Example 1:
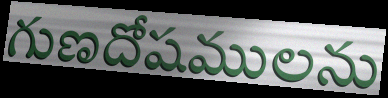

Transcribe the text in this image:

గుణదోషములను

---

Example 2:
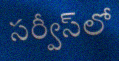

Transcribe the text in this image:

సర్వీస్‌లో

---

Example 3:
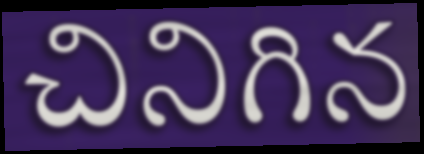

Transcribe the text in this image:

చినిగిన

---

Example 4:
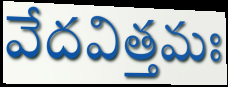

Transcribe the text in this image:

వేదవిత్తమః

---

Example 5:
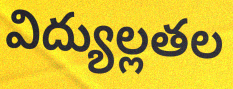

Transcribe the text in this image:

విద్యుల్లతల